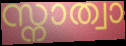
സ്നാത്വാ